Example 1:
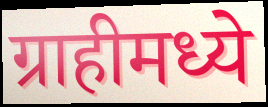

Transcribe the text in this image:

ग्राहीमध्ये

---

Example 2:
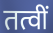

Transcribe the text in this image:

तत्वीं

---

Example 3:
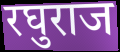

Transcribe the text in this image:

रघुराज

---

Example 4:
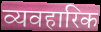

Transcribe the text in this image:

व्यवहारिक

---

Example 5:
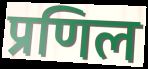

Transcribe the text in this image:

प्रणिल